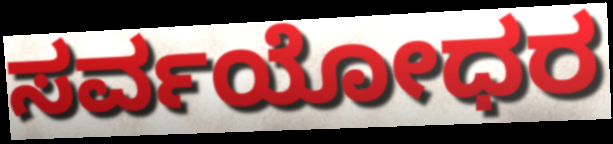
ಸರ್ವಯೋಧರ